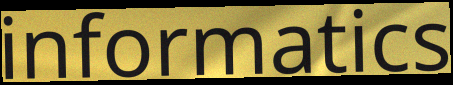
informatics